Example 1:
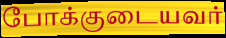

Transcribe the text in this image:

போக்குடையவர்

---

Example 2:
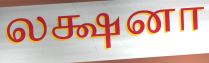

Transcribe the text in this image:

லக்ஷனா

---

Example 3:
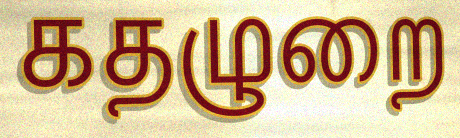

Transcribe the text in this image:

கதழுறை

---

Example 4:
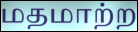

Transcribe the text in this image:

மதமாற்ற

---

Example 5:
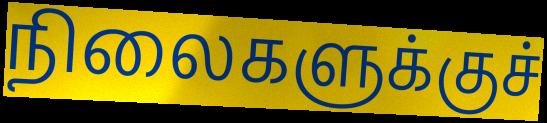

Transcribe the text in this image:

நிலைகளுக்குச்